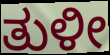
ತುಳೀ